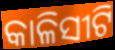
କାଳିସୀଟି